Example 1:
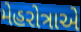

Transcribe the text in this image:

મેહરોત્રાએ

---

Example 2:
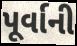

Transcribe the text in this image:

પૂર્વાની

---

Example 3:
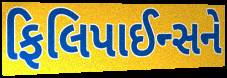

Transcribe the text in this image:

ફિલિપાઈન્સને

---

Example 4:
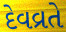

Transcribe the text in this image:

દેવવ્રતે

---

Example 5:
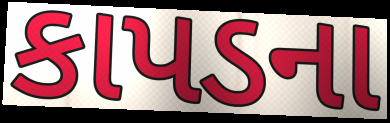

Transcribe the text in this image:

કાપડના